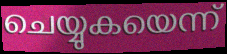
ചെയ്യുകയെന്ന്